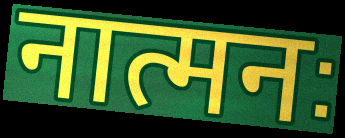
नात्मनः